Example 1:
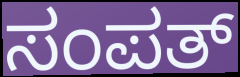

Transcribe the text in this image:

ಸಂಪತ್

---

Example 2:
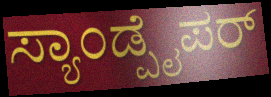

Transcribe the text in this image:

ಸ್ಯಾಂಡ್ಪೈಪರ್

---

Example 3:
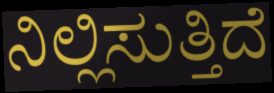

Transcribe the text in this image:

ನಿಲ್ಲಿಸುತ್ತಿದೆ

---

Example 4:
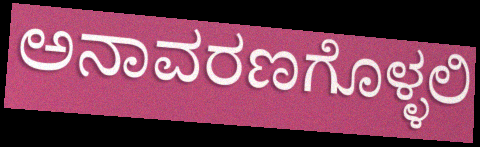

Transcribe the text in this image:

ಅನಾವರಣಗೊಳ್ಳಲಿ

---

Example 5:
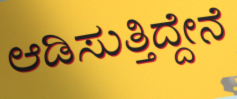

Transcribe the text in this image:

ಆಡಿಸುತ್ತಿದ್ದೇನೆ